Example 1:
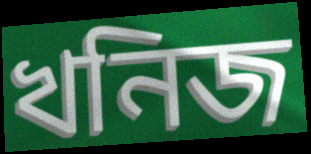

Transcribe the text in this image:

খনিজ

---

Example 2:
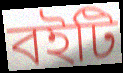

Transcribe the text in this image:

বইটি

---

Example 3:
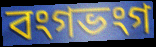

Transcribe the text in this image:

বংগভংগ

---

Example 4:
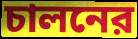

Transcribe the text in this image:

চালনের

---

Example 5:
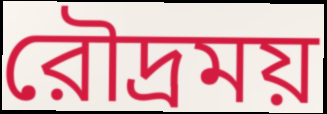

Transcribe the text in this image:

রৌদ্রময়